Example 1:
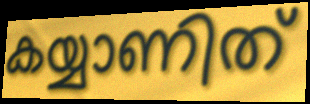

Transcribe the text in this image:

കയ്യാണിത്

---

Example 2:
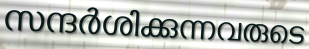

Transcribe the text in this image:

സന്ദർശിക്കുന്നവരുടെ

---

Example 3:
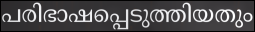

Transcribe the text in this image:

പരിഭാഷപ്പെടുത്തിയതും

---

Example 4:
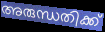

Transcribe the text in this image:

അരുന്ധതിക്ക്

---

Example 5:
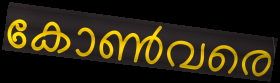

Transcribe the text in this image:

കോൺവരെ